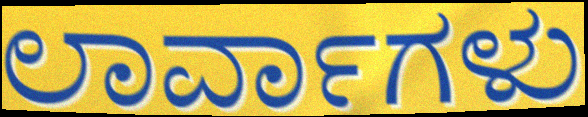
ಲಾರ್ವಾಗಳು